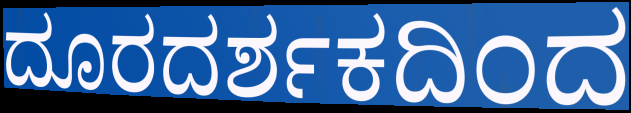
ದೂರದರ್ಶಕದಿಂದ